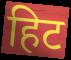
हिट